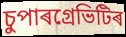
চুপাৰগ্ৰেভিটিৰ